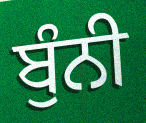
ਬੁੰਨੀ